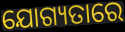
ଯୋଗ୍ୟତାରେ